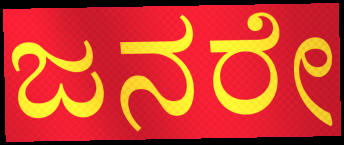
ಜನರೇ